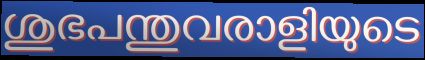
ശുഭപന്തുവരാളിയുടെ